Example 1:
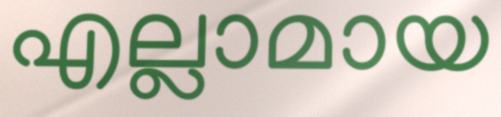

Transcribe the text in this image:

എല്ലാമായ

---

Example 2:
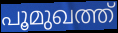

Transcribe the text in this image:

പൂമുഖത്ത്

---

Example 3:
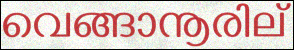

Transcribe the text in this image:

വെങ്ങാനൂരില്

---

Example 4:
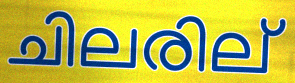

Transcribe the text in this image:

ചിലരില്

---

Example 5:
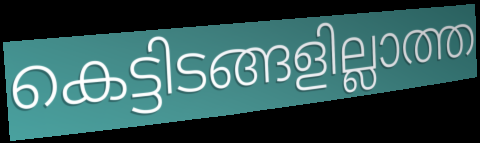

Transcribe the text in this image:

കെട്ടിടങ്ങളില്ലാത്ത